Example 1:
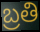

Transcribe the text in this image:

బ్రతి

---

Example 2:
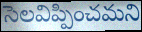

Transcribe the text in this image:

సెలవిప్పించమని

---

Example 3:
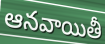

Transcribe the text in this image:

ఆనవాయితీ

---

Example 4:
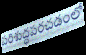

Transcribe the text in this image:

పరిశుద్ధపరచడంలో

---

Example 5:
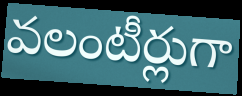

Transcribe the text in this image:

వలంటీర్లుగా